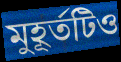
মুহূর্তটিও